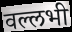
वल्लभी